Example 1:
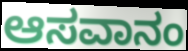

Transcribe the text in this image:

ಆಸವಾನಂ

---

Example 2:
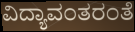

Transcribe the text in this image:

ವಿದ್ಯಾವಂತರಂತೆ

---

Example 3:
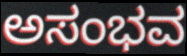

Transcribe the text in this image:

ಅಸಂಭವ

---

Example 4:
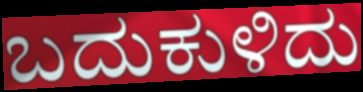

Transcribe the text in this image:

ಬದುಕುಳಿದು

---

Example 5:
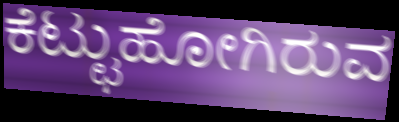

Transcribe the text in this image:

ಕೆಟ್ಟುಹೋಗಿರುವ